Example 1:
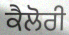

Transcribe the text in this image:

ਕੈਲੋਰੀ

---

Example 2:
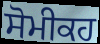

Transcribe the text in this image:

ਸੋਮੀਕਹ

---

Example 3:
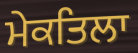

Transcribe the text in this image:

ਮੇਕਤਿਲਾ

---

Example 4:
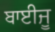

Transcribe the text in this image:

ਬਾਈਜੂ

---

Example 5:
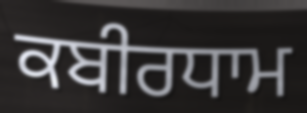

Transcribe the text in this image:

ਕਬੀਰਧਾਮ